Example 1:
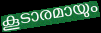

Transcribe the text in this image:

കൂടാരമായും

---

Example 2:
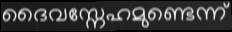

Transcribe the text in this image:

ദൈവസ്നേഹമുണ്ടെന്ന്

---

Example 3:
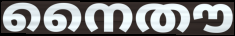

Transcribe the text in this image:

നൈതൗ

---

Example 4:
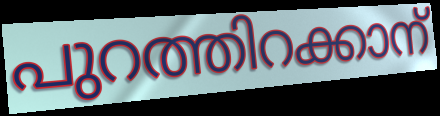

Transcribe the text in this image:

പുറത്തിറക്കാന്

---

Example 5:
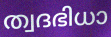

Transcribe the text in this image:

ത്വദഭിധാ